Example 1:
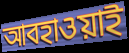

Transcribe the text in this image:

আবহাওয়াই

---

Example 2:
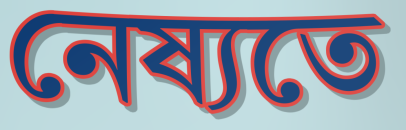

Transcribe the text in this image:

নেষ্যতে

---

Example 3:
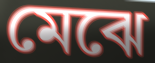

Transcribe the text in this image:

মেঝে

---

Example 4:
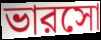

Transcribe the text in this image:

ভারসো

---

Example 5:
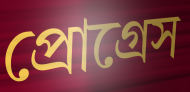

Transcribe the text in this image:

প্রোগ্রেস